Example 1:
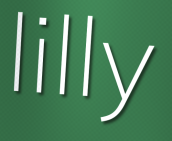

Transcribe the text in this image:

lilly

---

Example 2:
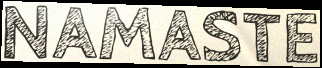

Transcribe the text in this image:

NAMASTE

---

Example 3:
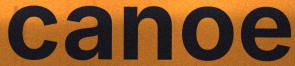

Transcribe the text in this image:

canoe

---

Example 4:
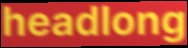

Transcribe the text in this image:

headlong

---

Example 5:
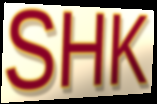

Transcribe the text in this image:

SHK